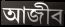
আজীব